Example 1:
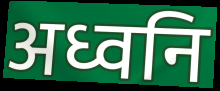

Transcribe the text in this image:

अध्वनि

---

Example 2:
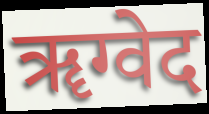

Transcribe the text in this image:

ॠग्वेद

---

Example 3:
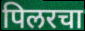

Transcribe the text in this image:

पिलरचा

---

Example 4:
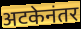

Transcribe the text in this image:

अटकेनंतर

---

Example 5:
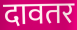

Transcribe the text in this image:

दावतर